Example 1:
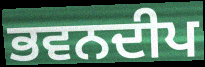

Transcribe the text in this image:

ਭਵਨਦੀਪ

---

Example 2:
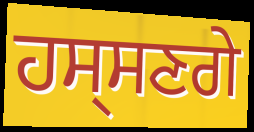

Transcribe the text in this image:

ਹਸ੍ਸਣਗੇ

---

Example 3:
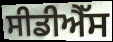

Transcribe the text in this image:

ਸੀਡੀਐੱਸ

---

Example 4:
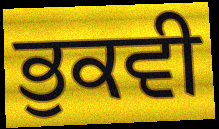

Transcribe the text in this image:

ਭੁਕਵੀ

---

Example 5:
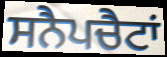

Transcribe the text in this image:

ਸਨੈਪਚੈਟਾਂ